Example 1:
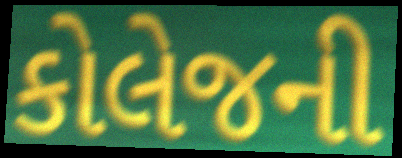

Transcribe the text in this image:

કોલેજની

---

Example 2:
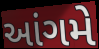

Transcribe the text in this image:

આંગમે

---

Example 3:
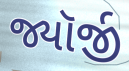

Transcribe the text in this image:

જ્યૉર્જી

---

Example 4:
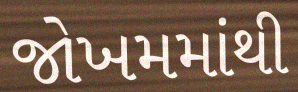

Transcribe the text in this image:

જોખમમાંથી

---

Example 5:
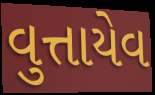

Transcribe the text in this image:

વુત્તાયેવ